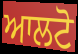
ਆਲਟੋ